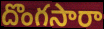
దొంగసారా